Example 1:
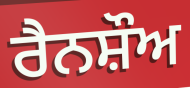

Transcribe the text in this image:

ਰੈਨਸ਼ੌਅ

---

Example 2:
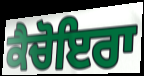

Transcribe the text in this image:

ਕੈਚੋਇਰਾ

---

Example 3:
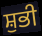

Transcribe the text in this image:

ਸ਼ੁਭੀ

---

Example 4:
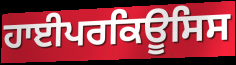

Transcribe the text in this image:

ਹਾਈਪਰਕਿਊਸਿਸ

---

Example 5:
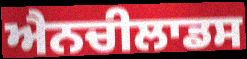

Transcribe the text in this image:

ਐਨਚੀਲਾਡਸ